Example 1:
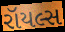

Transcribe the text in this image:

રૉયલ્સ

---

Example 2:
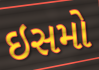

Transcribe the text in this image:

ઇસમો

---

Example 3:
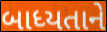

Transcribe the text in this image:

બાધ્યતાને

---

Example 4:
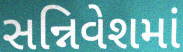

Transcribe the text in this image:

સન્નિવેશમાં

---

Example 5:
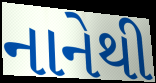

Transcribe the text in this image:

નાનેથી